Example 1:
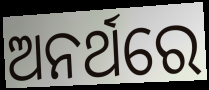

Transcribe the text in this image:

ଅନର୍ଥରେ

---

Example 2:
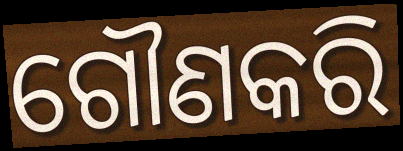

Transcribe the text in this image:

ଗୌଣକରି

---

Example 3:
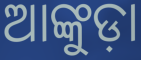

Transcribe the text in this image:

ଆଙ୍କୁଡ଼ା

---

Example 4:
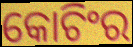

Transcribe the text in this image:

କୋଚିଂର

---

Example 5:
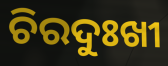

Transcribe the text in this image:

ଚିରଦୁଃଖୀ